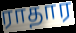
ராதார